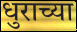
धुराच्या